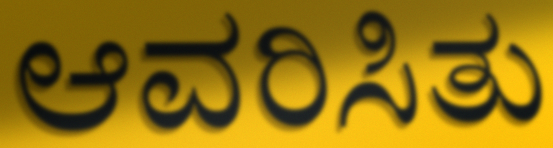
ಆವರಿಸಿತು